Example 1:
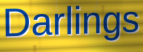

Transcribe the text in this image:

Darlings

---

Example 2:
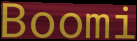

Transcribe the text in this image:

Boomi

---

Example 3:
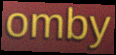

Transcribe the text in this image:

omby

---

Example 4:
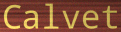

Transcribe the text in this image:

Calvet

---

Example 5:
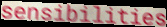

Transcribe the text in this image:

sensibilities